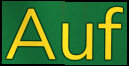
Auf